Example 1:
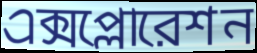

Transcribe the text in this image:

এক্সপ্লোরেশন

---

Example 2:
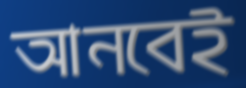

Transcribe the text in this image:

আনবেই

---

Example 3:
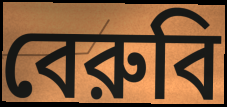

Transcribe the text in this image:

বেরুবি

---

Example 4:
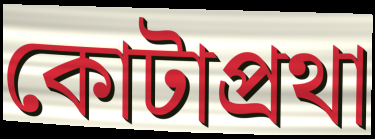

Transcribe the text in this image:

কোটাপ্রথা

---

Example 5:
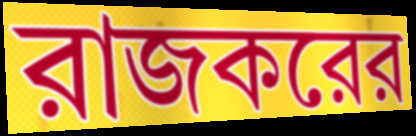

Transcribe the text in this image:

রাজকরের